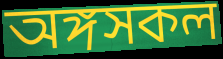
অঙ্গসকল